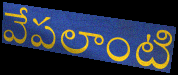
వేపలాంటి